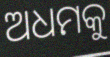
ଅଧମକୁ